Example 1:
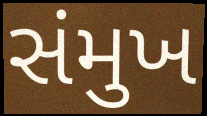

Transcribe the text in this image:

સંમુખ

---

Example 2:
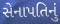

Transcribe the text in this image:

સેનાપતિનું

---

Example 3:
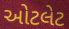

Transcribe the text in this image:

ઓટલેટ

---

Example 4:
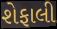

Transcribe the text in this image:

શેફાલી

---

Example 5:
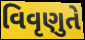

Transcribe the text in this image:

વિવૃણુતે